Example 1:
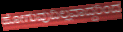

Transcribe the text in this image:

ಹೋಗುವುದಿಲ್ಲವಾದ್ದರಿಂದ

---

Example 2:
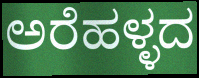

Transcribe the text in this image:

ಅರೆಹಳ್ಳದ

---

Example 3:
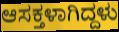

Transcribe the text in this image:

ಆಸಕ್ತಳಾಗಿದ್ದಳು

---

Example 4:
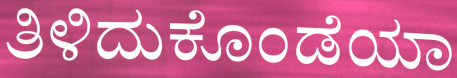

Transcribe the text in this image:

ತಿಳಿದುಕೊಂಡೆಯಾ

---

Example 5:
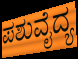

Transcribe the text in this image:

ಪಶುವೈದ್ಯ